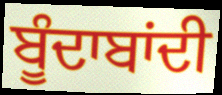
ਬੂੰਦਾਬਾਂਦੀ